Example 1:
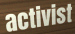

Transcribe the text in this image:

activist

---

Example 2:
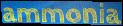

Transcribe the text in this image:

ammonia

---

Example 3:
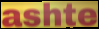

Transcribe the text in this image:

ashte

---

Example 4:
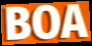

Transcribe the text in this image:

BOA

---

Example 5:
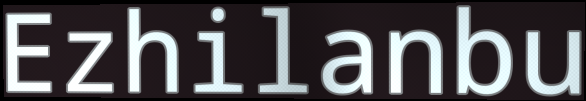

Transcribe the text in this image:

Ezhilanbu